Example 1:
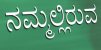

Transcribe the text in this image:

ನಮ್ಮಲ್ಲಿರುವ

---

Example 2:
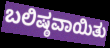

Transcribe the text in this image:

ಬಲಿಷ್ಠವಾಯಿತು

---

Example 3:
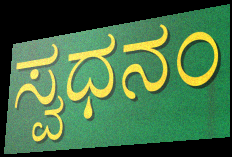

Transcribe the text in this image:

ಸ್ವಧನಂ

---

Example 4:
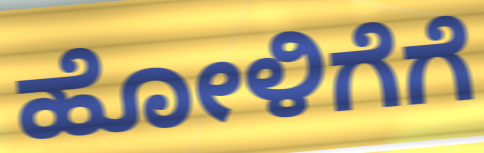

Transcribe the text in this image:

ಹೋಳಿಗೆಗೆ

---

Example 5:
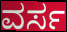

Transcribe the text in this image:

ವರ್ಸ